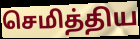
செமித்திய